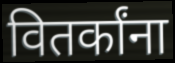
वितर्कांना